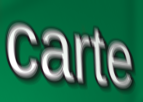
carte